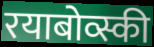
रयाबोव्स्की